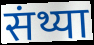
संथ्या